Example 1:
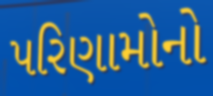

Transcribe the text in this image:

પરિણામોનો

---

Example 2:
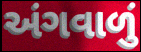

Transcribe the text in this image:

અંગવાળું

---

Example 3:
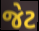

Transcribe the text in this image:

જેટ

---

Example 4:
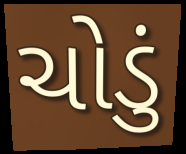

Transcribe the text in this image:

ચોડું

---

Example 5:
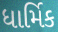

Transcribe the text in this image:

ધાર્મિક